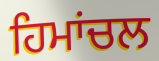
ਹਿਮਾਂਚਲ